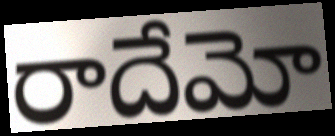
రాదేమో